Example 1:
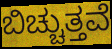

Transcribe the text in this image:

ಬಿಚ್ಚುತ್ತವೆ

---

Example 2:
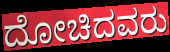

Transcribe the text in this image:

ದೋಚಿದವರು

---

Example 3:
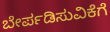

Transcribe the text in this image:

ಬೇರ್ಪಡಿಸುವಿಕೆಗೆ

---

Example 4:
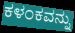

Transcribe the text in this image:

ಕಳಂಕವನ್ನು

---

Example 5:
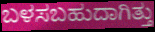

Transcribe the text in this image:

ಬಳಸಬಹುದಾಗಿತ್ತು